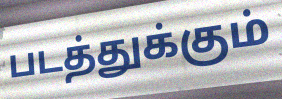
படத்துக்கும்